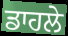
ਡਾਹਲੇ